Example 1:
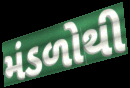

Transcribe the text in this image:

મંડળોથી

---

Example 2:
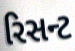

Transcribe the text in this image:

રિસન્ટ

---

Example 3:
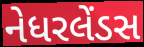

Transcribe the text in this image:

નેધરલેંડસ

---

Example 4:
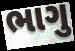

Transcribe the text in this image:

ભાગુ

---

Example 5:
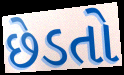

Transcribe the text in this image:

છેડતો